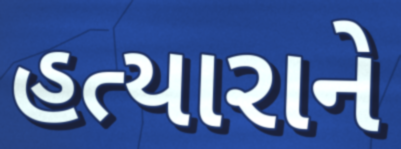
હત્યારાને